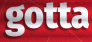
gotta